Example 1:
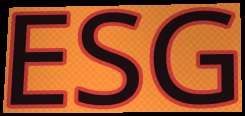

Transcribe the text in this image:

ESG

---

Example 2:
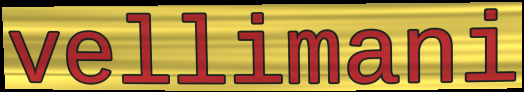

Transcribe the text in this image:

vellimani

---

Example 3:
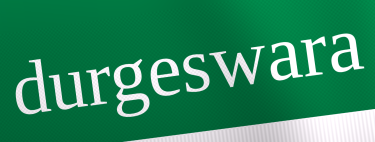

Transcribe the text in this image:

durgeswara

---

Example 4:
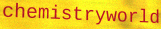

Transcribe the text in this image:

chemistryworld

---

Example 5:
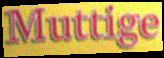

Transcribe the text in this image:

Muttige